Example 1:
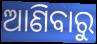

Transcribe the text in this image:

ଆଣିବାରୁ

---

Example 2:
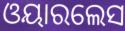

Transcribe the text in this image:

ଓୟାରଲେସ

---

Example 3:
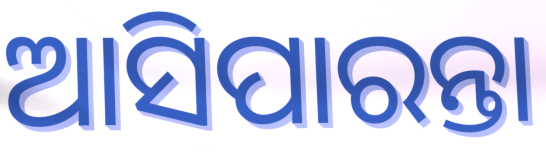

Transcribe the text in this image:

ଆସିପାରନ୍ତା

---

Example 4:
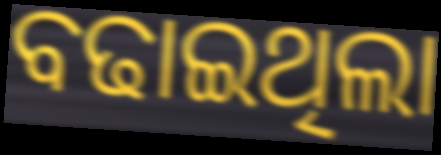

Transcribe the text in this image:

ବଢାଇଥିଲା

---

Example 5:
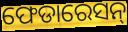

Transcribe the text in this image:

ଫେଡାରେସନ୍